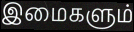
இமைகளும்